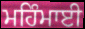
ਮਹਿੰਮਾਈ